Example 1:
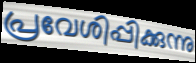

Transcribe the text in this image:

പ്രവേശിപ്പിക്കുന്നു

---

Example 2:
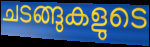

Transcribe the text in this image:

ചടങ്ങുകളുടെ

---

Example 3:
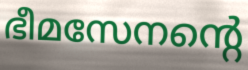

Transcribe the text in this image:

ഭീമസേനന്റെ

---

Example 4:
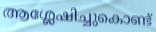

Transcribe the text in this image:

ആശ്ലേഷിച്ചുകൊണ്ട്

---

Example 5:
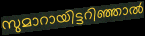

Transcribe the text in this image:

സുമാറായിട്ടറിഞ്ഞാൽ